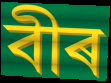
বীৰ